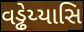
વડ્ઢેય્યાસિ